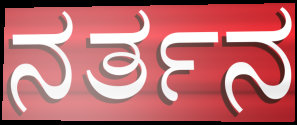
ನರ್ತನ